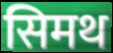
सिमथ